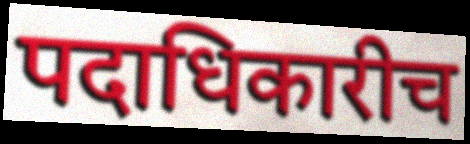
पदाधिकारीच